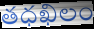
తధఖిలం